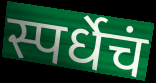
स्पर्धेचं